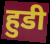
हुडी